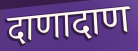
दाणादाण